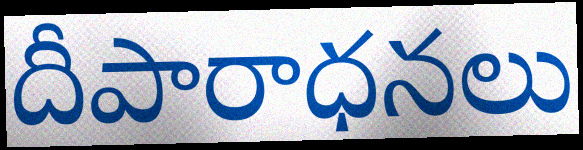
దీపారాధనలు